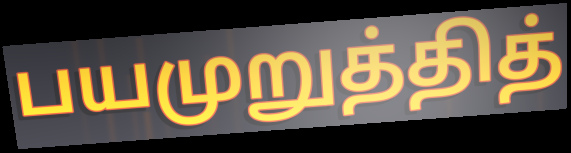
பயமுறுத்தித்